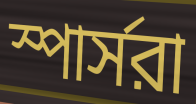
স্পার্সরা